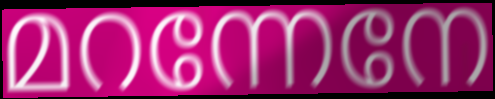
മറന്നേനേ